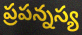
ప్రపన్నస్య